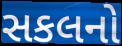
સકલનો